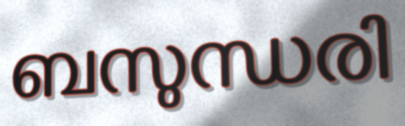
ബസുന്ധരി